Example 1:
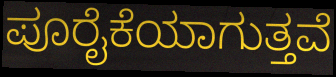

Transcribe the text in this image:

ಪೂರೈಕೆಯಾಗುತ್ತವೆ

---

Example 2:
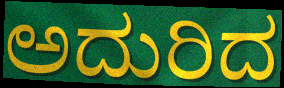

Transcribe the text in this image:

ಅದುರಿದ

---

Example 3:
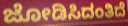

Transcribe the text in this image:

ಜೋಡಿಸಿದಂತಿದೆ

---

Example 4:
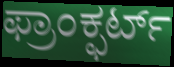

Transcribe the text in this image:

ಫ್ರಾಂಕ್ಫರ್ಟ್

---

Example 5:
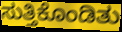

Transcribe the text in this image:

ಸುತ್ತಿಕೊಂಡಿತು